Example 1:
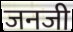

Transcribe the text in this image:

जनजी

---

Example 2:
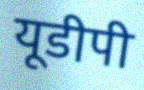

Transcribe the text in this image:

यूडीपी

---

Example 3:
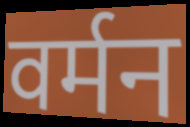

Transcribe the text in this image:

वर्मन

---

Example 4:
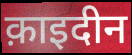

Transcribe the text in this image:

क़ाइदीन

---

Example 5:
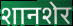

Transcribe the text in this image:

शानशेर